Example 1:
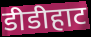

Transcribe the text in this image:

डीडीहाट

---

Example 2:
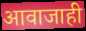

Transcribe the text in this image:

आवाजाही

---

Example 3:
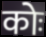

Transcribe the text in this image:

कोः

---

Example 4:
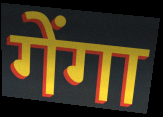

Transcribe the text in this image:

गेंगा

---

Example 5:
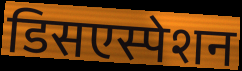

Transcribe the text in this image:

डिसएस्पेशन